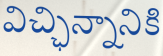
విచ్ఛిన్నానికి